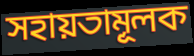
সহায়তামূলক